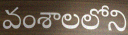
వంశాలలోని